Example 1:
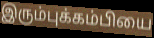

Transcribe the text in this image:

இரும்புக்கம்பியை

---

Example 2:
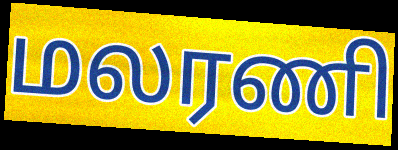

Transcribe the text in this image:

மலரணி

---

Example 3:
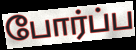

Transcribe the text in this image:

போர்ப்ப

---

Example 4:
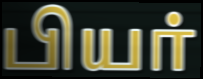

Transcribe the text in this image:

பியர்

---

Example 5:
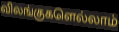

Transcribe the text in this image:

விலங்குகளெல்லாம்